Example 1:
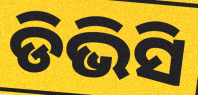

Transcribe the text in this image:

ଡିଭିସି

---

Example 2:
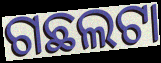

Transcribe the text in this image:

ଗଛଲଟା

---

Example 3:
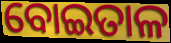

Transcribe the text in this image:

ବୋଇତାଳ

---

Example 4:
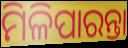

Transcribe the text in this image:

ମିଳିପାରନ୍ତା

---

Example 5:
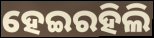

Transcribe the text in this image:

ହେଇରହିଲି